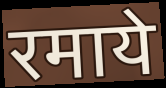
रमाये